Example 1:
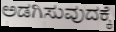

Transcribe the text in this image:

ಅಡಗಿಸುವುದಕ್ಕೆ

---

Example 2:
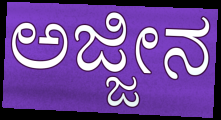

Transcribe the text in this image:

ಅಜ್ಜೀನ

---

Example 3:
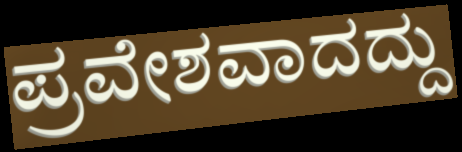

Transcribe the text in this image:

ಪ್ರವೇಶವಾದದ್ದು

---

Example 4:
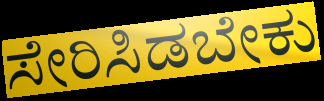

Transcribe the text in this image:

ಸೇರಿಸಿಡಬೇಕು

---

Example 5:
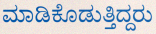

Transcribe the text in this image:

ಮಾಡಿಕೊಡುತ್ತಿದ್ದರು